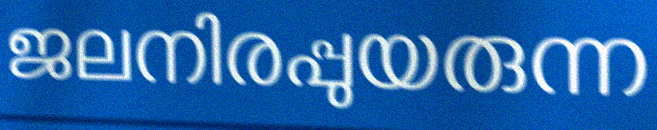
ജലനിരപ്പുയരുന്ന